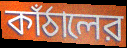
কাঁঠালের